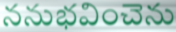
ననుభవించెను